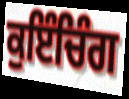
ਕੁਇੰਚਿੰਗ